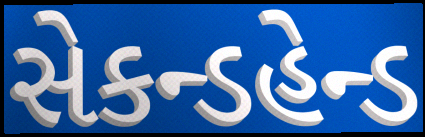
સેકન્ડહેન્ડ